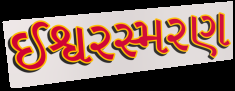
ઈશ્વરસ્મરણ